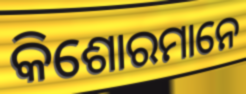
କିଶୋରମାନେ